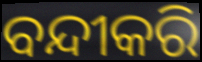
ବନ୍ଦୀକରି